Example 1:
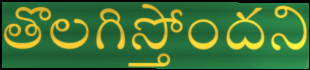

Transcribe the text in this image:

తొలగిస్తోందని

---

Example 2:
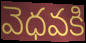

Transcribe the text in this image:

వెధవకి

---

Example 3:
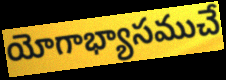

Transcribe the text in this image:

యోగాభ్యాసముచే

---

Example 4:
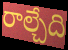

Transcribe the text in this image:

రాల్చేది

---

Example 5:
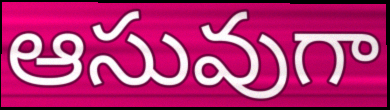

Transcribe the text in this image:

ఆసువుగా